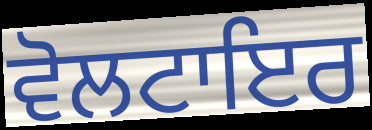
ਵੋਲਟਾਇਰ